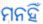
ମନହିଁ